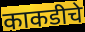
काकडीचे